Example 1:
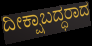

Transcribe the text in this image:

ದೀಕ್ಷಾಬದ್ಧರಾದ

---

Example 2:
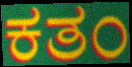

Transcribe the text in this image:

ಕತಂ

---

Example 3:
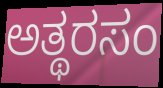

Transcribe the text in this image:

ಅತ್ಥರಸಂ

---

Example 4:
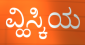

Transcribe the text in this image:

ವ್ಹಿಸ್ಕಿಯ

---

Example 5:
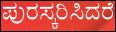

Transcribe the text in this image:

ಪುರಸ್ಕರಿಸಿದರೆ